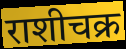
राशीचक्र